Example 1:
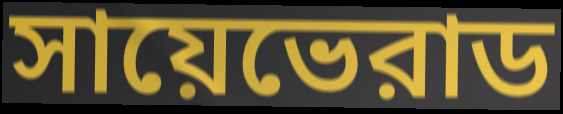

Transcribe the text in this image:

সায়েভেরাড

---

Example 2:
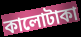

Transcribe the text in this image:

কালোটাকা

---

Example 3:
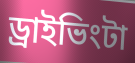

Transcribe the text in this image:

ড্রাইভিংটা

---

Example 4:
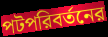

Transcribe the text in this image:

পটপরিবর্তনের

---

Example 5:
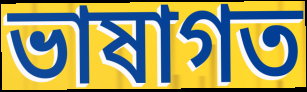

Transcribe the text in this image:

ভাষাগত